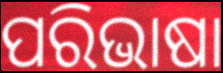
ପରିଭାଷା